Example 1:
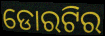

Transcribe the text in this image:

ଡୋରଟିର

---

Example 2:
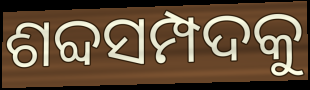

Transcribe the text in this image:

ଶବ୍ଦସମ୍ପଦକୁ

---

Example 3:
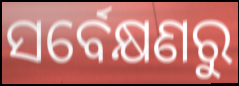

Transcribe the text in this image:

ସର୍ବେକ୍ଷଣରୁ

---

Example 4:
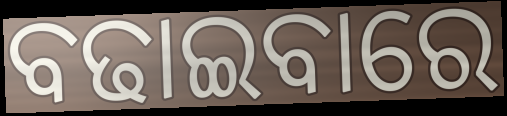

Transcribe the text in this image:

ବଢାଇବାରେ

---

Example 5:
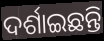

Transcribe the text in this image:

ଦର୍ଶାଇଛନ୍ତି